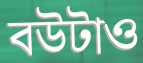
বউটাও